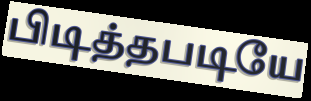
பிடித்தபடியே